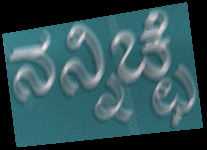
ನನ್ನಿಚ್ಛೆ